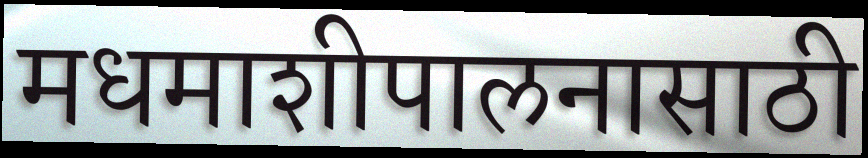
मधमाशीपालनासाठी